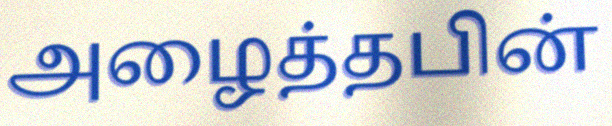
அழைத்தபின்